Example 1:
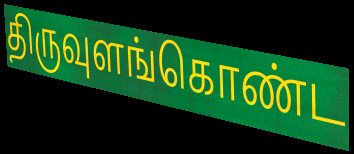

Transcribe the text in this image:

திருவுளங்கொண்ட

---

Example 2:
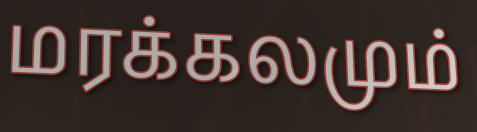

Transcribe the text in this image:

மரக்கலமும்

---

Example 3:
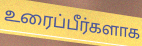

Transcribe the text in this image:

உரைப்பீர்களாக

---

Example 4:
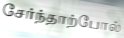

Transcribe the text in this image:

சேர்ந்தாற்போல்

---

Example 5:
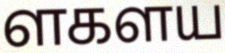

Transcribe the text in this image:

ளகளய